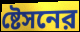
ষ্টেসনের